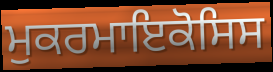
ਮੁਕਰਮਾਇਕੋਸਿਸ